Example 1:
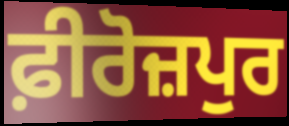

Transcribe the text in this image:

ਫ਼ੀਰੋਜ਼ਪੁਰ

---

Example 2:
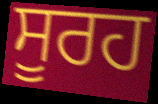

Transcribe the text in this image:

ਸੂਰਹ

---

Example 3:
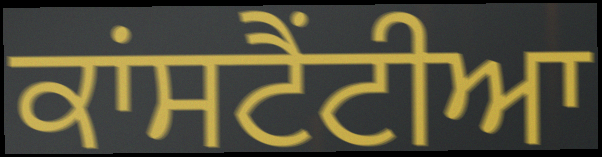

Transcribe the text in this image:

ਕਾਂਸਟੈਂਟੀਆ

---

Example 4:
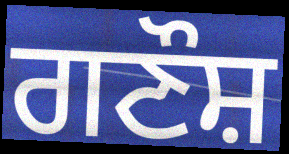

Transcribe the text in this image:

ਗਣੌਸ਼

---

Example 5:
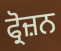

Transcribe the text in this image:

ਫ੍ਰੋਜ਼ਨ